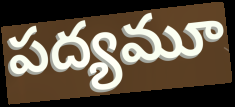
పద్యమూ